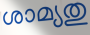
ശാമ്യതു